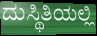
ದುಸ್ಥಿತಿಯಲ್ಲಿ